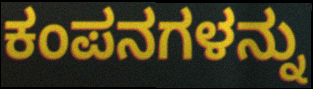
ಕಂಪನಗಳನ್ನು